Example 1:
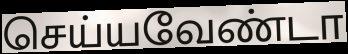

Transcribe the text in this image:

செய்யவேண்டா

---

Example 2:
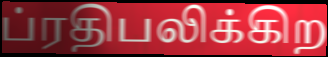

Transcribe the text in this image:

ப்ரதிபலிக்கிற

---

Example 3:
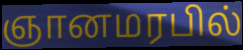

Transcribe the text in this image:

ஞானமரபில்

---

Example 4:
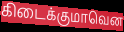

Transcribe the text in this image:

கிடைக்குமாவென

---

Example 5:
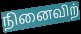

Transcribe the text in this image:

நினைவிற்